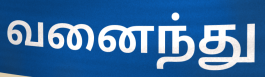
வனைந்து